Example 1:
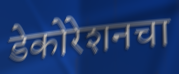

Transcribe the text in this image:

डेकोरेशनचा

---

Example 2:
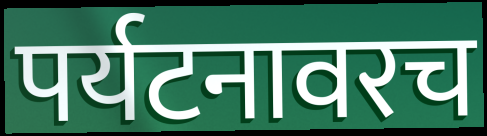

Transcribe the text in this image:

पर्यटनावरच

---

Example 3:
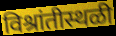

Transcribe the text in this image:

विश्रांतीस्थळी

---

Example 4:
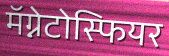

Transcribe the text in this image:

मॅग्नेटोस्फियर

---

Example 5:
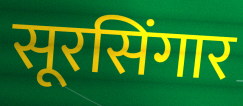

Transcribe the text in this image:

सूरसिंगार